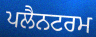
ਪਲੈਨਟਰਮ